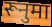
रूनुमा